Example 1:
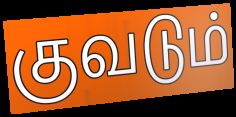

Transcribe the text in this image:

குவடும்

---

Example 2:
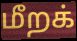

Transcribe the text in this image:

மீறக்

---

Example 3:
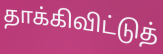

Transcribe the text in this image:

தாக்கிவிட்டுத்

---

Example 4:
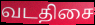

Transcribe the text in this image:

வடதிசை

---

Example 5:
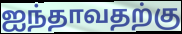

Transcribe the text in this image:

ஐந்தாவதற்கு